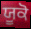
ਯੂਕੋ